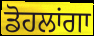
ਡੋਹਲਾਂਗਾ